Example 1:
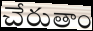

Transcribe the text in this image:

చేరుతాం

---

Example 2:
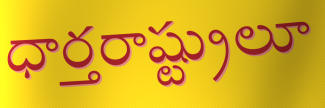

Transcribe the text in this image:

ధార్తరాష్ట్రులూ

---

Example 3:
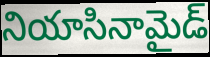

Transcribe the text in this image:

నియాసినామైడ్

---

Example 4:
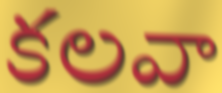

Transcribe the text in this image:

కలవా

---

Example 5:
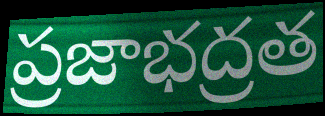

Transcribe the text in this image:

ప్రజాభద్రత